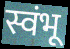
स्वंभू